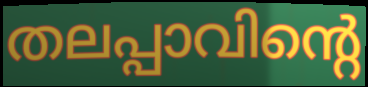
തലപ്പാവിന്റെ